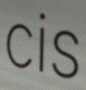
cis